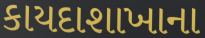
કાયદાશાખાના